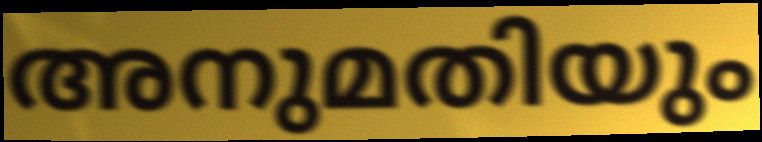
അനുമതിയും